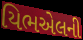
યિભએલની